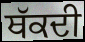
ਥੱਕਦੀ